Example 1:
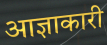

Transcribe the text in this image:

आज्ञाकारी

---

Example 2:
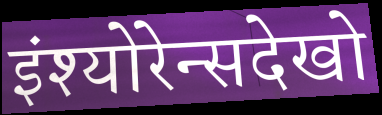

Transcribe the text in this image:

इंश्योरेन्सदेखो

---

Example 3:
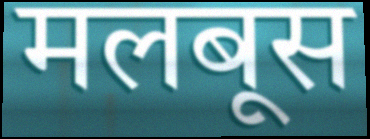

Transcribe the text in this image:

मलबूस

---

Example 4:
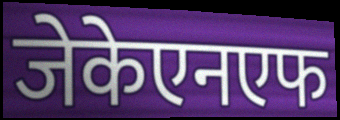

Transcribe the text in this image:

जेकेएनएफ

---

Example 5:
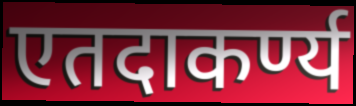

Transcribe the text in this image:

एतदाकर्ण्य